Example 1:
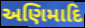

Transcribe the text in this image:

અણિમાદિ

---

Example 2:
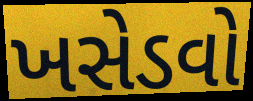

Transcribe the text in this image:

ખસેડવો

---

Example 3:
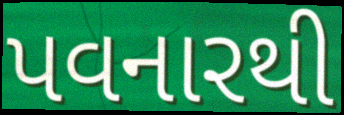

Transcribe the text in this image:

પવનારથી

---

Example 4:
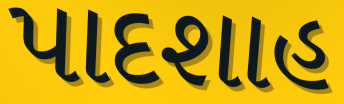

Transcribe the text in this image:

પાદશાહ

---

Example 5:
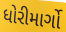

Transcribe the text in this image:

ધોરીમાર્ગો